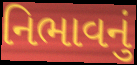
નિભાવનું